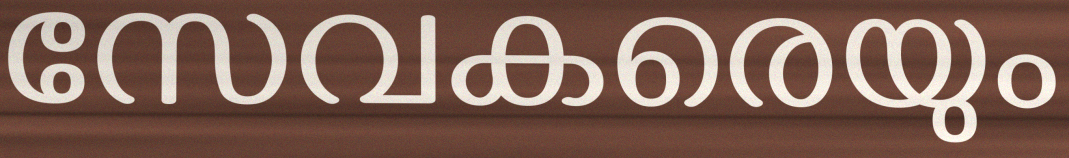
സേവകരെയും